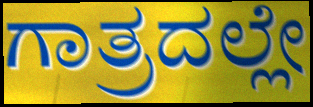
ಗಾತ್ರದಲ್ಲೇ